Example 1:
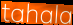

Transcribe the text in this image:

tahala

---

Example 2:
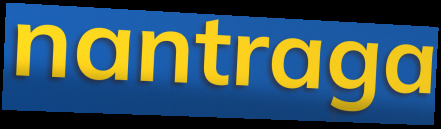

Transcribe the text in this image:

nantraga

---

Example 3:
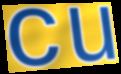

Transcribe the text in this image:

cu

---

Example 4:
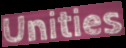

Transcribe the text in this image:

Unities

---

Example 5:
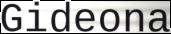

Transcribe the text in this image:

Gideona